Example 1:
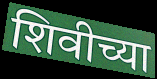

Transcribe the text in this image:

शिवीच्या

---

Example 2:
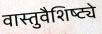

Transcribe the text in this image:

वास्तुवैशिष्ट्ये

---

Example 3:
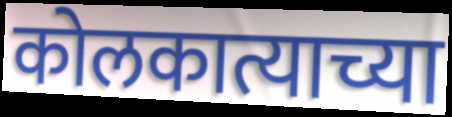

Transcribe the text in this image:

कोलकात्याच्या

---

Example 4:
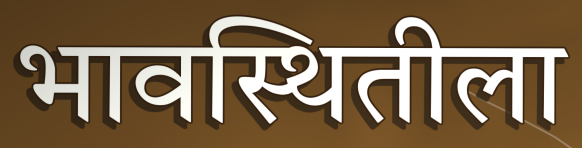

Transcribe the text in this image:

भावस्थितीला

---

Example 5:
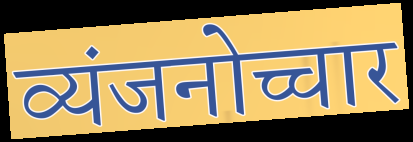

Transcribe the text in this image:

व्यंजनोच्चार